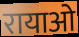
रायाओ